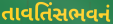
તાવતિંસભવનં